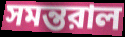
সমন্তরাল